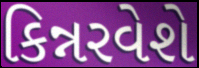
કિન્નરવેશે